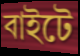
বাইটে